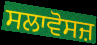
ਸਲਾਵੋਸਜ਼